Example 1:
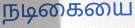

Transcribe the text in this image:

நடிகையை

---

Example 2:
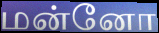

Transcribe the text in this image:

மன்னோ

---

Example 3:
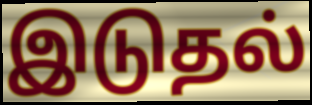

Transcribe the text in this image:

இடுதல்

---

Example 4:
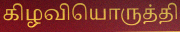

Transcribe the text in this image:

கிழவியொருத்தி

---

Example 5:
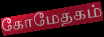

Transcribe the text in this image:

கோமேதகம்